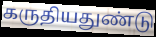
கருதியதுண்டு